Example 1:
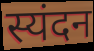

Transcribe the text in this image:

स्यंदन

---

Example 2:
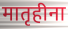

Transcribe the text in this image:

मातृहीना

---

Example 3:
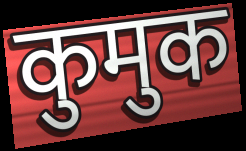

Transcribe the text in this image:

कुमुक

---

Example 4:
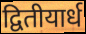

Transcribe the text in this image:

द्वितीयार्ध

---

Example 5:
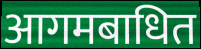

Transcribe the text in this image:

आगमबाधित